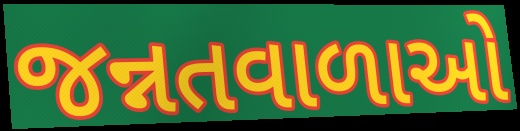
જન્નતવાળાઓ